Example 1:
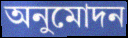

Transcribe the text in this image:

অনুমোদন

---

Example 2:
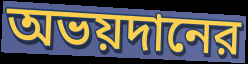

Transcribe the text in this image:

অভয়দানের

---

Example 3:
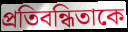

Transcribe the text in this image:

প্রতিবন্ধিতাকে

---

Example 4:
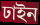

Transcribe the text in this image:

ঢাইন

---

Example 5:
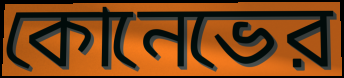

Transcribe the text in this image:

কোনেভের